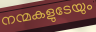
നന്മകളുടേയും